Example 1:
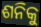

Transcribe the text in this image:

ଶନିକୁ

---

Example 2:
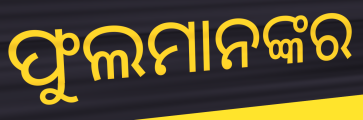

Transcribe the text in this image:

ଫୁଲମାନଙ୍କର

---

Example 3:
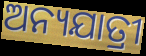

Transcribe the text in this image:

ଅନ୍ଯଯାତ୍ରୀ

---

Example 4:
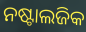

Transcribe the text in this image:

ନଷ୍ଟାଲଜିକ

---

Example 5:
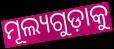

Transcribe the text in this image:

ମୂଲ୍ୟଗୁଡ଼ାକୁ